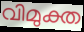
വിമുക്ത